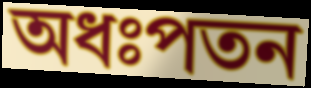
অধঃপতন